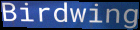
Birdwing